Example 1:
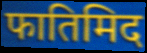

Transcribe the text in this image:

फातिमिद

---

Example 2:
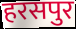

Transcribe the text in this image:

हरसपुर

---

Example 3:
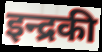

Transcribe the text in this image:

इन्द्रकी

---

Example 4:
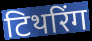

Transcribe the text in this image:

टिथरिंग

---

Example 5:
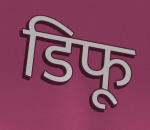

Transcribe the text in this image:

डिफू